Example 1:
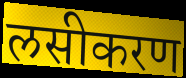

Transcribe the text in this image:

लसीकरण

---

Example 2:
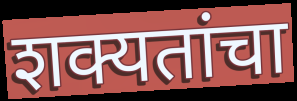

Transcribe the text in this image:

शक्यतांचा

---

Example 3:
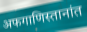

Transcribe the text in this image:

अफगाणिस्तानांत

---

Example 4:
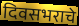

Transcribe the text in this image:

दिवसभराचे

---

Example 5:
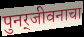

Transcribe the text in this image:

पुनर्जीवनाचा